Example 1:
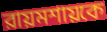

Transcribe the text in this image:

রায়মশায়কে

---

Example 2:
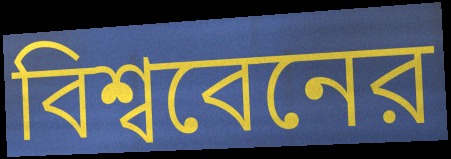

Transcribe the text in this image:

বিশ্ববেনের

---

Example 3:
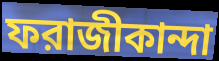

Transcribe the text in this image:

ফরাজীকান্দা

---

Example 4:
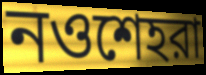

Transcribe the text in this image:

নওশেহরা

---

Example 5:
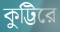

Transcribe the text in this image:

কুট্টিরে